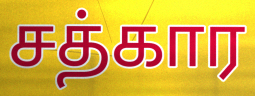
சத்கார